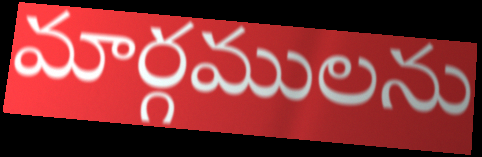
మార్గములను